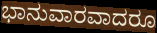
ಭಾನುವಾರವಾದರೂ